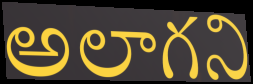
అలాగని